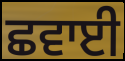
ਛਵਾਈ